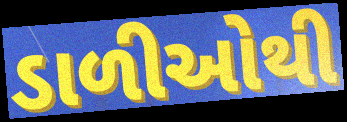
ડાળીઓથી